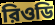
রিওডি